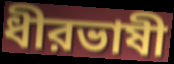
ধীরভাষী